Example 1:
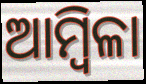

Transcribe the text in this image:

ଆମ୍ବିଳା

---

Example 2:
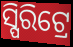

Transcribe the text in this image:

ସ୍ପିରିଟ୍ରେ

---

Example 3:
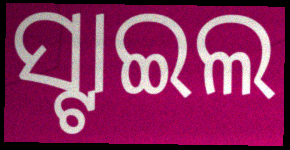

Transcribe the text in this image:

ସ୍ଟାଇଲ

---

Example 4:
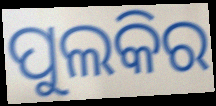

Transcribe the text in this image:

ପୁଲକିର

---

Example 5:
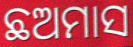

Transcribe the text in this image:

ଛଅମାସ